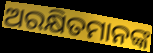
ଅରକ୍ଷିତମାନଙ୍କ